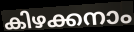
കിഴക്കനാം